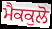
ਮੈਕਕੁਲੋ